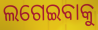
ଲଗେଇବାକୁ